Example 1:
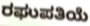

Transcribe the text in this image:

ರಘುಪತಿಯೆ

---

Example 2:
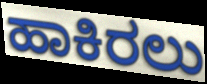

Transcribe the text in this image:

ಹಾಕಿರಲು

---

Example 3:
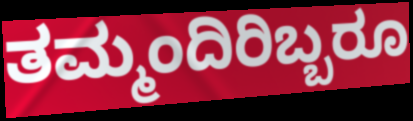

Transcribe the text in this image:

ತಮ್ಮಂದಿರಿಬ್ಬರೂ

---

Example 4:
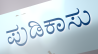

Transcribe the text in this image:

ಪುಡಿಕಾಸು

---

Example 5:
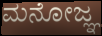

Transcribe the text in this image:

ಮನೋಜ್ಞ